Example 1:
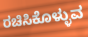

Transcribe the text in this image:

ರಚಿಸಿಕೊಳ್ಳುವ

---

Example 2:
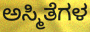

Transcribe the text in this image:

ಅಸ್ಮಿತೆಗಳ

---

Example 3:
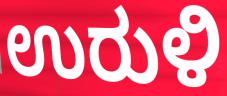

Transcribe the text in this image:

ಉರುಳಿ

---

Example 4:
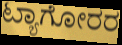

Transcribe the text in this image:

ಟ್ಯಾಗೋರರ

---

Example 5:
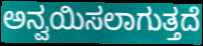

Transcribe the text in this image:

ಅನ್ವಯಿಸಲಾಗುತ್ತದೆ